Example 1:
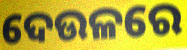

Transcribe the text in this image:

ଦେଉଳରେ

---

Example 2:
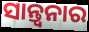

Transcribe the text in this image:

ସାନ୍ତ୍ବନାର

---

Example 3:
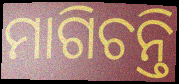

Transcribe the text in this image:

ମାଗିଚନ୍ତି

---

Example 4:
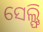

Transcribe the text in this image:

ସେଲ୍ଫି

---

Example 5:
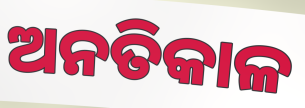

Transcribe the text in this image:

ଅନତିକାଳ